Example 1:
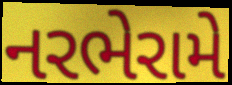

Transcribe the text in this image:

નરભેરામે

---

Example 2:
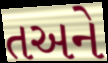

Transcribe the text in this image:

તઅને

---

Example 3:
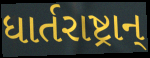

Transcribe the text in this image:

ધાર્તરાષ્ટ્રાન્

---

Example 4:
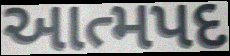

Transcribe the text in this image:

આત્મપદ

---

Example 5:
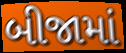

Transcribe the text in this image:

બીજામાં